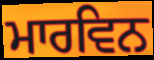
ਮਾਰਵਿਨ